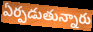
ఏర్పడుతున్నారు